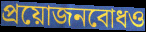
প্রয়োজনবোধও